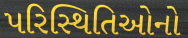
પરિસ્થિતિઓનો